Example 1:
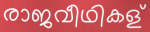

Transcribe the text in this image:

രാജവീഥികള്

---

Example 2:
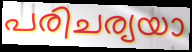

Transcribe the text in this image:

പരിചര്യയാ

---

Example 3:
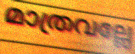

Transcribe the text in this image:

മാത്രവല്ലേ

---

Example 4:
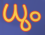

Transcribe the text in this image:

ധും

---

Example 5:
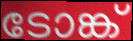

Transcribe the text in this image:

ടോങ്ക്